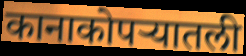
कानाकोपऱ्यातली